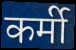
कर्मी